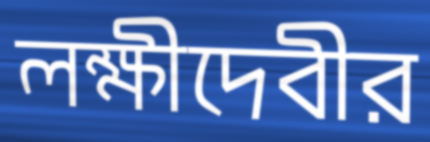
লক্ষীদেবীর